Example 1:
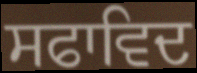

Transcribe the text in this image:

ਸਫਾਵਿਦ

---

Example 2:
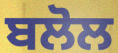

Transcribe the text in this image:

ਬਲੋਲ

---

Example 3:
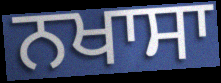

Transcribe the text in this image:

ਨਖਾਸਾ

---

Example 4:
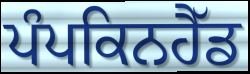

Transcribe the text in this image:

ਪੰਪਕਿਨਹੈੱਡ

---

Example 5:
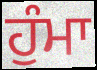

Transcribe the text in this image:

ਹੁੰਮਾ